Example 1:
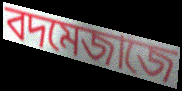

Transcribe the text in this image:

বদমেজাজে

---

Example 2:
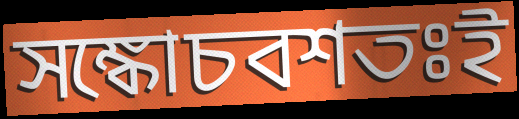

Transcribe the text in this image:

সঙ্কোচবশতঃই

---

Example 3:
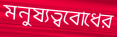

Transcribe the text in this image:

মনুষ্যত্ববোধের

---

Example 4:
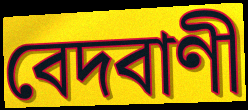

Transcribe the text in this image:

বেদবাণী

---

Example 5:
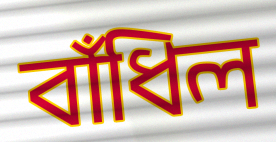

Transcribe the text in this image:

বাঁধিল